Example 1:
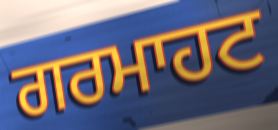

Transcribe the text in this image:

ਗਰਮਾਹਟ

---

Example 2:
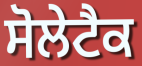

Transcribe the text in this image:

ਸੋਲੇਟੈਕ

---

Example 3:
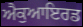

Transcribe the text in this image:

ਐਕੁਆਇਰਡ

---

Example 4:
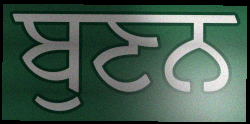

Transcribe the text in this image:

ਬੁਣਨ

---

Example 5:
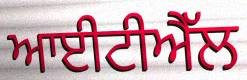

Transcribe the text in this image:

ਆਈਟੀਐੱਲ